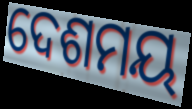
ଦେଶମୟ